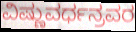
ವಿಷ್ಣುವರ್ಧನ್ರವರ